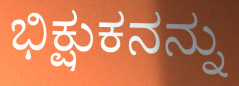
ಭಿಕ್ಷುಕನನ್ನು